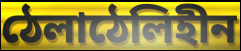
ঠেলাঠেলিহীন